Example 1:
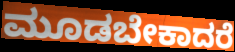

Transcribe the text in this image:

ಮೂಡಬೇಕಾದರೆ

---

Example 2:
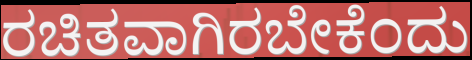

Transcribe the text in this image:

ರಚಿತವಾಗಿರಬೇಕೆಂದು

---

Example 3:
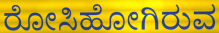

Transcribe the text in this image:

ರೋಸಿಹೋಗಿರುವ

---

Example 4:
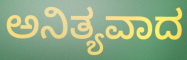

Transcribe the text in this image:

ಅನಿತ್ಯವಾದ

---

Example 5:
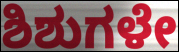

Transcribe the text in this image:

ಶಿಶುಗಳೇ